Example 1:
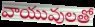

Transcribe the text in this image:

వాయువులతో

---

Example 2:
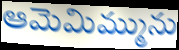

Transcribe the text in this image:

ఆమెమిమ్మును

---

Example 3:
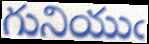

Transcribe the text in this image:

గునియుఁ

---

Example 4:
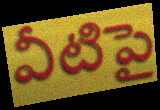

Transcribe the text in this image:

వీటిపై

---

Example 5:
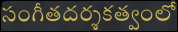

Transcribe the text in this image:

సంగీతదర్శకత్వంలో